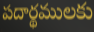
పదార్థములకు